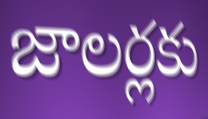
జాలర్లకు